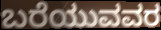
ಬರೆಯುವವರ